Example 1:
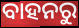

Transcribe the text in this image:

ବାହନରୁ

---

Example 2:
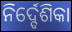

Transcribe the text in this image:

ନିର୍ଦ୍ଦେଶିକା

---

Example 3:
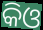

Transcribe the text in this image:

କିଓ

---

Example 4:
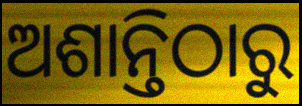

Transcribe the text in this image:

ଅଶାନ୍ତିଠାରୁ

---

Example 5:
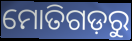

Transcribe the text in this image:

ମୋତିଗଡ଼ରୁ